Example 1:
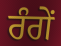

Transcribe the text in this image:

ਰੰਗੇਂ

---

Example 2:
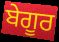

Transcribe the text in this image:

ਬੇਗੂਰ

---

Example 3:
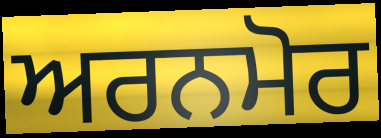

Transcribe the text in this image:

ਅਰਨਮੋਰ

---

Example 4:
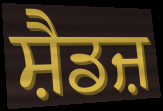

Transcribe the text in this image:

ਸ਼ੈਡਜ਼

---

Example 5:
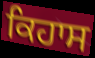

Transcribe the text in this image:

ਕਿਹਾਸ